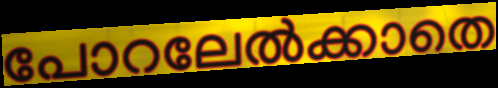
പോറലേൽക്കാതെ